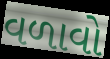
વળાવો